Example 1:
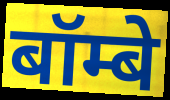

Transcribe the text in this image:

बॉम्बे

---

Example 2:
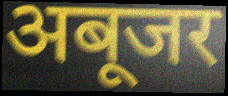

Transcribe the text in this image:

अबूजर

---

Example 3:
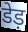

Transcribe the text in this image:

डेड़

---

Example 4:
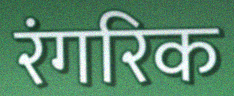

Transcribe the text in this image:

रंगरिक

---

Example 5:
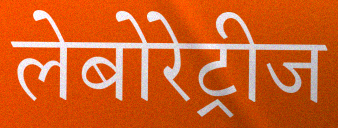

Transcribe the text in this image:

लेबोरेट्रीज